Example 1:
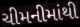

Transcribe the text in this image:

ચીમનીમાંથી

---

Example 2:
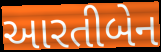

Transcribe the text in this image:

આરતીબેન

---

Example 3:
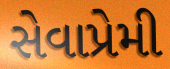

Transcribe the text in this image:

સેવાપ્રેમી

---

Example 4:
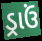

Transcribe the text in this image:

ડ્રાઉં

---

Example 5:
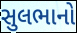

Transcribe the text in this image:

સુલભાનો